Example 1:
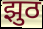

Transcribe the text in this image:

झुठ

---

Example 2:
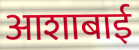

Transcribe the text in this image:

आशाबाई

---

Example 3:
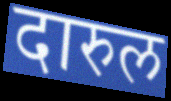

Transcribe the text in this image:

दारुल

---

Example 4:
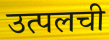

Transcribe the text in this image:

उत्पलची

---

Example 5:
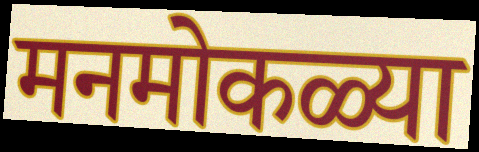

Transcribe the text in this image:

मनमोकळ्या